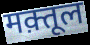
मक़्तूल